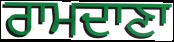
ਰਾਮਦਾਣਾ